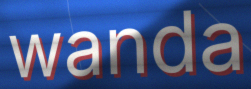
wanda